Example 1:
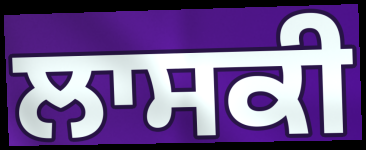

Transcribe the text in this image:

ਲਾਸਕੀ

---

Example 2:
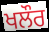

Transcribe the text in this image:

ਖਲੌਰ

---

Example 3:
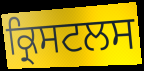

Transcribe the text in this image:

ਕ੍ਰਿਸਟਲਸ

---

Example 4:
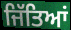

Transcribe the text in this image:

ਜਿੱਤਿਆਂ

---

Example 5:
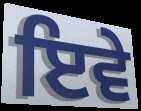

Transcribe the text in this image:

ਇਵੇ